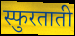
स्फुरताती